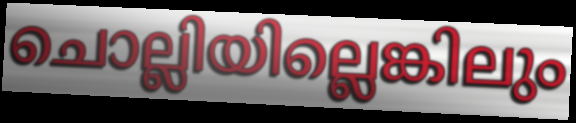
ചൊല്ലിയില്ലെങ്കിലും